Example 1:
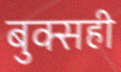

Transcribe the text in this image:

बुक्सही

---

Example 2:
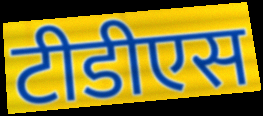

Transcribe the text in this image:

टीडीएस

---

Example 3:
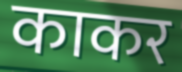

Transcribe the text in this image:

काकर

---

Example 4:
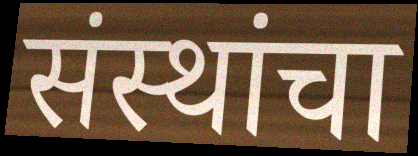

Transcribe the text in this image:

संस्थांचा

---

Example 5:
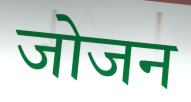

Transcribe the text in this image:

जोजन